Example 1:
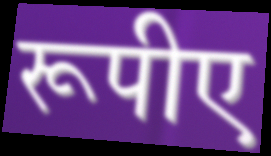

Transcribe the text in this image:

रूपीए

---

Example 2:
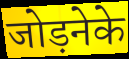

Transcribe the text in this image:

जोड़नेके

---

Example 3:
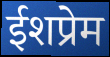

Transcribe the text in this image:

ईशप्रेम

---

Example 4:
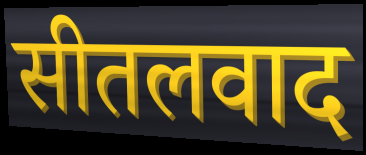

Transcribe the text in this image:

सीतलवाद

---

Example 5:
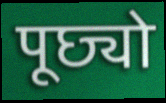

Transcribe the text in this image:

पूछ्यो